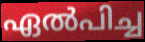
ഏൽപിച്ച